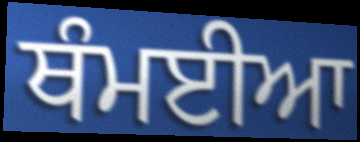
ਥੰਮਈਆ